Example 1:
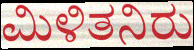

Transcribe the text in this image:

ಮಿಳಿತನಿರು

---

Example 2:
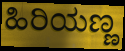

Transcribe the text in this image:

ಹಿರಿಯಣ್ಣ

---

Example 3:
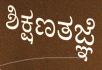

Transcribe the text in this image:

ಶಿಕ್ಷಣತಜ್ಞೆ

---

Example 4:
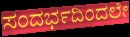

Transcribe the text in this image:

ಸಂದರ್ಭದಿಂದಲೇ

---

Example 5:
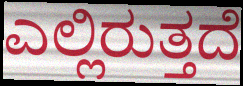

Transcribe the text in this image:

ಎಲ್ಲಿರುತ್ತದೆ